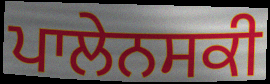
ਪਾਲੇਨਸਕੀ